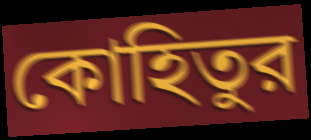
কোহিতুর